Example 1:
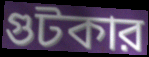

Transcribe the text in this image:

গুটকার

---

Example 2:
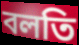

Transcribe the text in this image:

বলতি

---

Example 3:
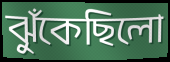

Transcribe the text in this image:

ঝুঁকেছিলো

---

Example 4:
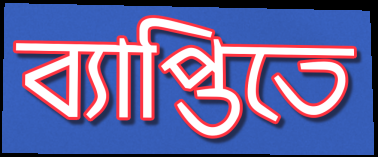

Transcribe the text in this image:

ব্যাপ্তিতে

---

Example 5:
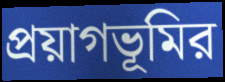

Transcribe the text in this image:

প্রয়াগভূমির